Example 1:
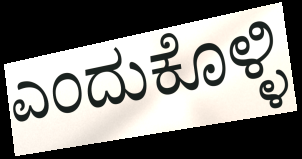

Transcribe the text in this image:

ಎಂದುಕೊಳ್ಳಿ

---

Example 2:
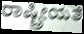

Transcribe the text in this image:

ರಾಷ್ಟ್ರೀಯತೆ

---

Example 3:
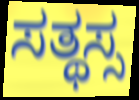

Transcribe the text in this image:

ಸತ್ಥಸ್ಸ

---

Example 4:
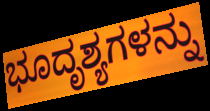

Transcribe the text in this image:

ಭೂದೃಶ್ಯಗಳನ್ನು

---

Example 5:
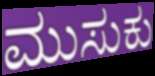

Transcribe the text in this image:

ಮುಸುಕು